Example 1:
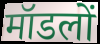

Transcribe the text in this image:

मॉडलों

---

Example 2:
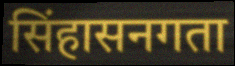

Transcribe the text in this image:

सिंहासनगता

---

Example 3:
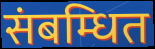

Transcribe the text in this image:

संबम्धित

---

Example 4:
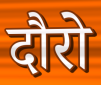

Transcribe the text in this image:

दौरो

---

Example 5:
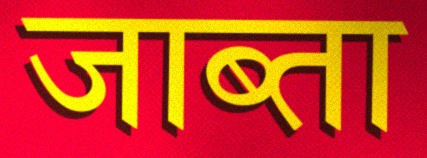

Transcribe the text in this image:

जाब्ता